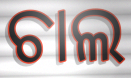
ଚାଲ